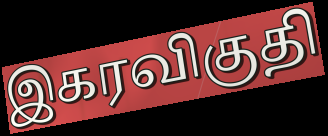
இகரவிகுதி